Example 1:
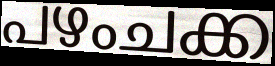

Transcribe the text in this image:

പഴംചക്ക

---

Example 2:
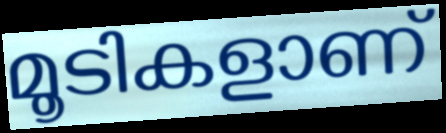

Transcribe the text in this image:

മൂടികളാണ്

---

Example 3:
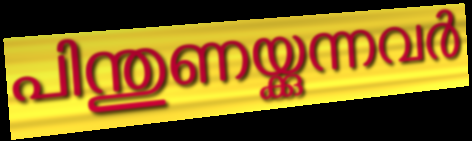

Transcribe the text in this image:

പിന്തുണയ്ക്കുന്നവർ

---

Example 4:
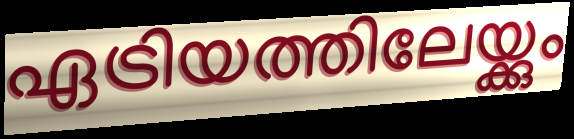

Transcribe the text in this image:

ഏട്രിയത്തിലേയ്ക്കും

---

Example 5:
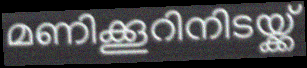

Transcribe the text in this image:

മണിക്കൂറിനിടയ്ക്ക്